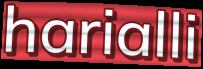
harialli